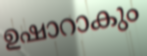
ഉഷാറാകും